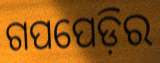
ଗପପେଡ଼ିର